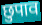
छुपाव